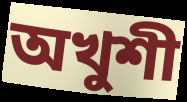
অখুশী